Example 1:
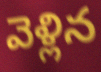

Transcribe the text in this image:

వెళ్లిన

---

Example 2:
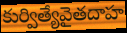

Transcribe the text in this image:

కుర్విత్యేవైతదాహ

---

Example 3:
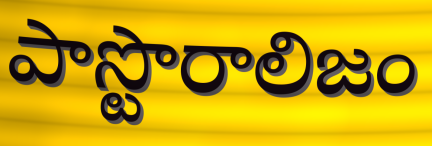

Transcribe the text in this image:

పాస్టొరాలిజం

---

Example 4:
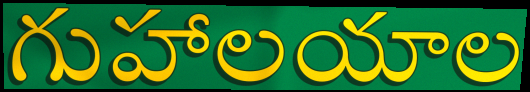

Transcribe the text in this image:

గుహాలయాల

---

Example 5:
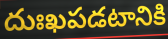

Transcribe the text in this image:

దుఃఖపడటానికి